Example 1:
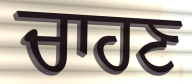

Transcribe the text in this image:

ਚਾਹਣ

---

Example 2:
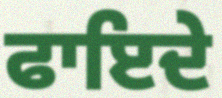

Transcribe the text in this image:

ਫਾਇਦੇ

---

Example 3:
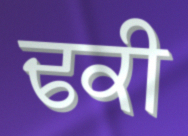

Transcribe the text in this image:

ਢਕੀ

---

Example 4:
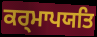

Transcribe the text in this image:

ਕਰ੍ਮਾਪਯਤਿ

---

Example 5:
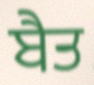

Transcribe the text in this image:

ਬੈਤ